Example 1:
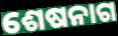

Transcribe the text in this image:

ଶେଷନାଗ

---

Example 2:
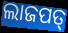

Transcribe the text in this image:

ଲାଜପତ୍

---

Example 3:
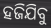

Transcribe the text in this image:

ହଜିଯିବୁ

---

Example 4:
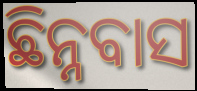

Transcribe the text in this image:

ଛିନ୍ନବାସ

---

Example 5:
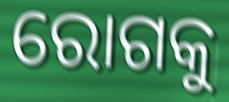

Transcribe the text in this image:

ରୋଗକୁ